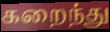
கறைந்து